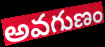
అవగుణం